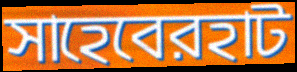
সাহেবেরহাট